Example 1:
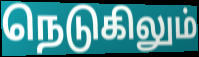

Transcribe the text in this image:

நெடுகிலும்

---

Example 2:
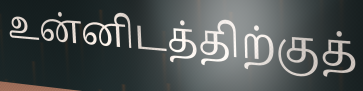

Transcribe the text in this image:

உன்னிடத்திற்குத்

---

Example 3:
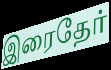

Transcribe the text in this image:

இரைதேர்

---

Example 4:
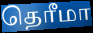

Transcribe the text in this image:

தெரீமா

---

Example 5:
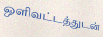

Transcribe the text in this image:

ஒளிவட்டத்துடன்